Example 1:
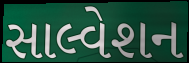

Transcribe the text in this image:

સાલ્વેશન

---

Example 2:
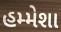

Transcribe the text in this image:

હમ્મેશા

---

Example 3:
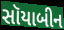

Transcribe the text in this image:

સૉયાબીન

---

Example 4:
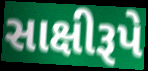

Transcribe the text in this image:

સાક્ષીરૂપે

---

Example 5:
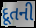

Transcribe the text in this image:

દૂતની